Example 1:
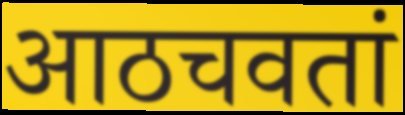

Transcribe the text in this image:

आठचवतां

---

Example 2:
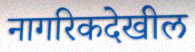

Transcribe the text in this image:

नागरिकदेखील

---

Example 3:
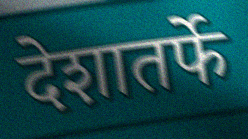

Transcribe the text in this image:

देशातर्फे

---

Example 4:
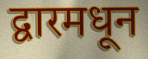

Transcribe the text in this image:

द्वारमधून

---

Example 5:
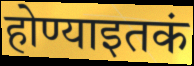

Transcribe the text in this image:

होण्याइतकं